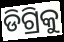
ଡିଗ୍ରିକୁ